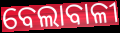
ବେଲାବାଳୀ